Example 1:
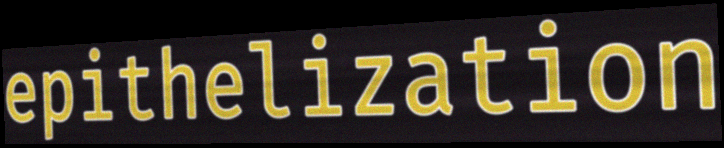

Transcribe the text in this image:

epithelization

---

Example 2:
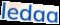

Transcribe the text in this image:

ledaa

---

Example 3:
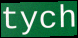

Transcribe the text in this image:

tych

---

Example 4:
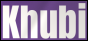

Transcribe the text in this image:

Khubi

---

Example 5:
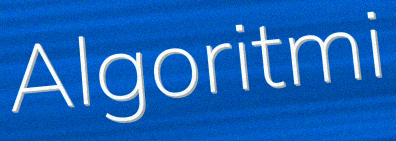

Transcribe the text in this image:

Algoritmi